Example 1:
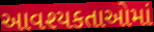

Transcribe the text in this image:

આવશ્યકતાઓમાં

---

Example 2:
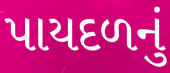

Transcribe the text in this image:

પાયદળનું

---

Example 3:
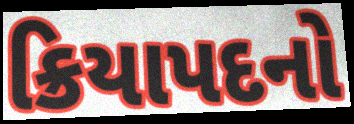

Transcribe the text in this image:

ક્રિયાપદનો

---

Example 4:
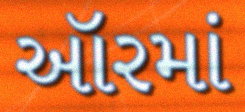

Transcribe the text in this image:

ઑરમાં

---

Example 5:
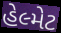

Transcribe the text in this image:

હેલ્મેટ